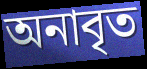
অনাবৃত